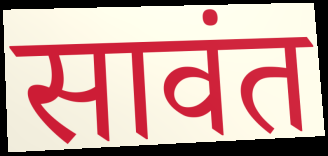
सावंत